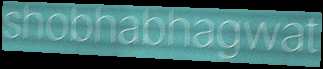
shobhabhagwat